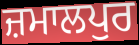
ਜ਼ਮਾਲਪੁਰ